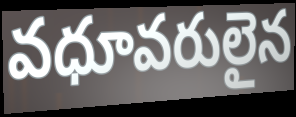
వధూవరులైన